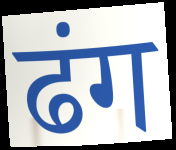
ढंग